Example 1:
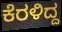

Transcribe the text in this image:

ಕೆರಳಿದ್ದ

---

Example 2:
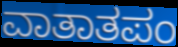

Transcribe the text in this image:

ವಾತಾತಪಂ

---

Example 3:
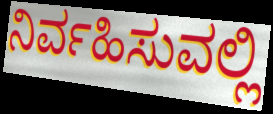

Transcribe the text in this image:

ನಿರ್ವಹಿಸುವಲ್ಲಿ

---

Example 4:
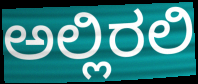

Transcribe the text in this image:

ಅಲ್ಲಿರಲಿ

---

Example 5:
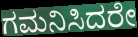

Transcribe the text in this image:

ಗಮನಿಸಿದರೇ